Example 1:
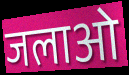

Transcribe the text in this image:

जलाओ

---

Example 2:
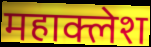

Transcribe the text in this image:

महाक्लेश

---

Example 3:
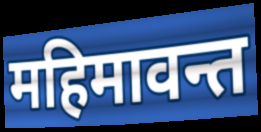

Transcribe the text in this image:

महिमावन्त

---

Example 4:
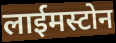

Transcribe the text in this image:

लाईमस्टोन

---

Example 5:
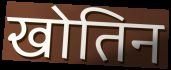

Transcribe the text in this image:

खोतिन